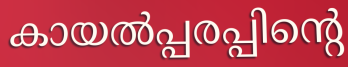
കായൽപ്പരപ്പിന്റെ